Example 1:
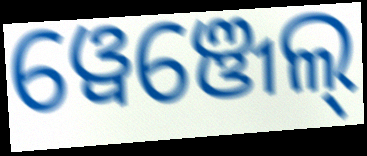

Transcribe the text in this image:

ୱେଞ୍ଜେଲ୍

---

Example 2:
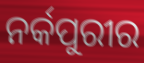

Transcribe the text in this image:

ନର୍କପୁରୀର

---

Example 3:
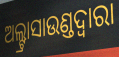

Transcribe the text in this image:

ଅଲ୍ଟ୍ରାସାଉଣ୍ଡଦ୍ୱାରା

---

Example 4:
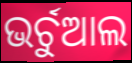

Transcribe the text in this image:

ଭର୍ଚୁଆଲ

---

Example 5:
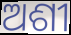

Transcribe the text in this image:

ଅଶୀ